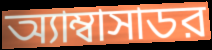
অ্যাম্বাসাডর